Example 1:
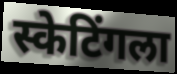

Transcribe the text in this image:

स्केटिंगला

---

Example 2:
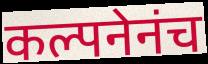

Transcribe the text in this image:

कल्पनेनंच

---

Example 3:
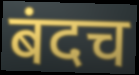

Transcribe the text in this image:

बंदच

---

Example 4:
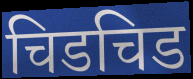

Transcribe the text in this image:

चिडचिड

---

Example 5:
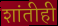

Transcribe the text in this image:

शांतीही